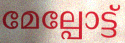
മേല്പോട്ട്